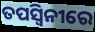
ତପସ୍ଵିନୀରେ